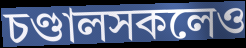
চণ্ডালসকলেও